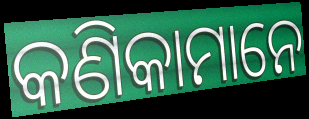
କଣିକାମାନେ